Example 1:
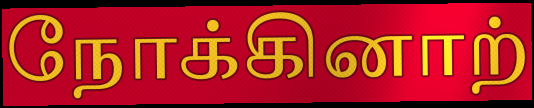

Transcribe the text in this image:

நோக்கினாற்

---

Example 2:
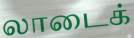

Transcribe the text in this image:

லாடைக்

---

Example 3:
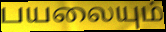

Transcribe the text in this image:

பயலையும்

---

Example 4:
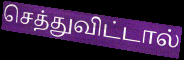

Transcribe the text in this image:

செத்துவிட்டால்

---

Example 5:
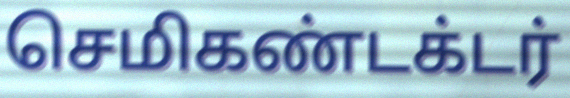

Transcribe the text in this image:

செமிகண்டக்டர்